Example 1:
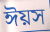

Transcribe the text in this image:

ঈয়স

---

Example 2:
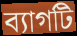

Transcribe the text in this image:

ব্যাগটি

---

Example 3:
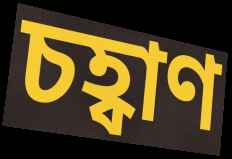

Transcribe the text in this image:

চহ্বাণ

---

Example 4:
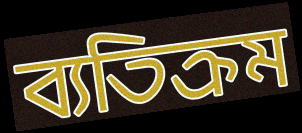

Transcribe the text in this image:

ব্যতিক্রম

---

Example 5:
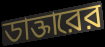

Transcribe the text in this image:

ডাক্তারের